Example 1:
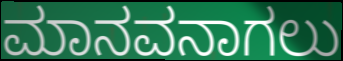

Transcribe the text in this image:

ಮಾನವನಾಗಲು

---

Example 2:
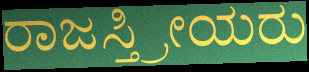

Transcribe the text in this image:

ರಾಜಸ್ತ್ರೀಯರು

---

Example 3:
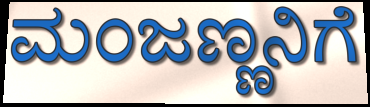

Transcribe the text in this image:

ಮಂಜಣ್ಣನಿಗೆ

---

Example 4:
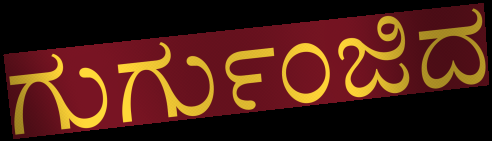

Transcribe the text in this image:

ಗುರ್ಗುಂಜಿದ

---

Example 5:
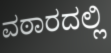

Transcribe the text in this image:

ವಠಾರದಲ್ಲಿ